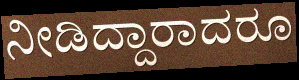
ನೀಡಿದ್ದಾರಾದರೂ